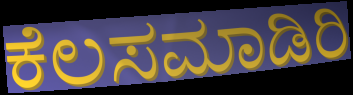
ಕೆಲಸಮಾಡಿರಿ